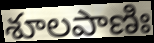
శూలపాణిః